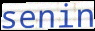
senin